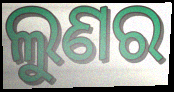
ଲୁଣର